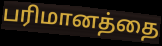
பரிமானத்தை